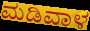
ಮಡಿವಾಳ